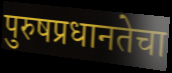
पुरुषप्रधानतेचा